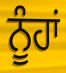
ਨੂੰਹਾਂ